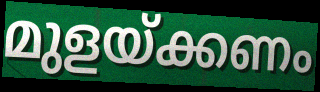
മുളയ്ക്കണം